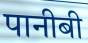
पानीबी